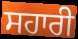
ਸਹਾਰੀ